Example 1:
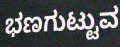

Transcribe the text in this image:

ಭಣಗುಟ್ಟುವ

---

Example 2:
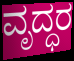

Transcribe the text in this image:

ವೃದ್ಧರ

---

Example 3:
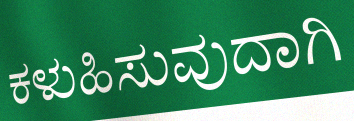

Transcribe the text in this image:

ಕಳುಹಿಸುವುದಾಗಿ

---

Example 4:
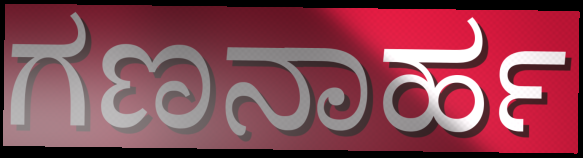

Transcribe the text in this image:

ಗಣನಾರ್ಹ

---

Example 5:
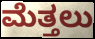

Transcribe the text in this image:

ಮೆತ್ತಲು